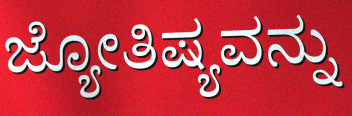
ಜ್ಯೋತಿಷ್ಯವನ್ನು